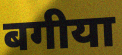
बगीया